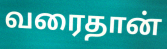
வரைதான்